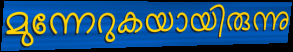
മുന്നേറുകയായിരുന്നു